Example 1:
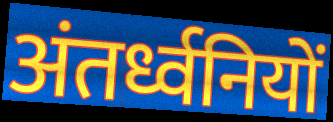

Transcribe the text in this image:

अंतर्ध्वनियों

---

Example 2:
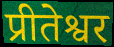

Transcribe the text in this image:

प्रीतेश्वर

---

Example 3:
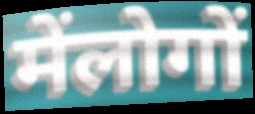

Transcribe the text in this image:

मेंलोगों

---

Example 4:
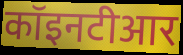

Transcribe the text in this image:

कॉइनटीआर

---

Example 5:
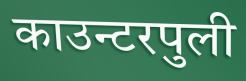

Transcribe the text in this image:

काउन्टरपुली